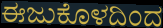
ಈಜುಕೊಳದಿಂದ